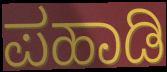
ಪಹಾಡಿ